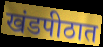
खंडपीठात